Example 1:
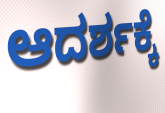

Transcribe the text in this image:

ಆದರ್ಶಕ್ಕೆ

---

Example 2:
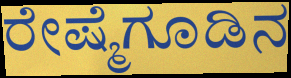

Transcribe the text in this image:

ರೇಷ್ಮೆಗೂಡಿನ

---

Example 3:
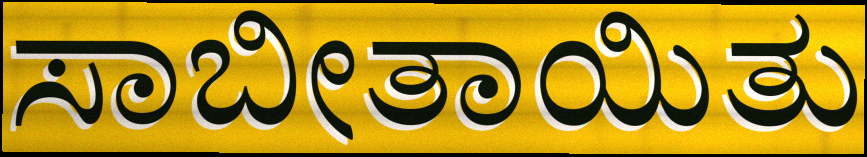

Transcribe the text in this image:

ಸಾಬೀತಾಯಿತು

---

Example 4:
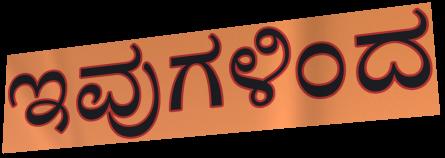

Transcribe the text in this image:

ಇವುಗಳಿಂದ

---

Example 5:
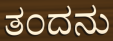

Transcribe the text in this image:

ತಂದನು